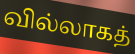
வில்லாகத்